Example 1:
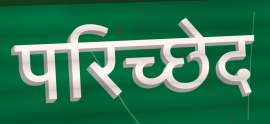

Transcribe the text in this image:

परिच्छेद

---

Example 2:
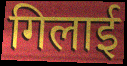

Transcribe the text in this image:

गिलाई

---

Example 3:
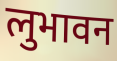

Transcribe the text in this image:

लुभावन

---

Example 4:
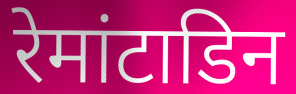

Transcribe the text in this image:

रेमांटाडिन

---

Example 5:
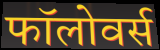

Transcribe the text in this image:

फॉलोवर्स